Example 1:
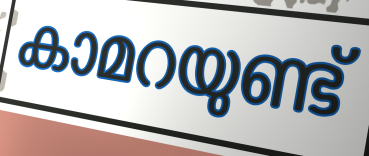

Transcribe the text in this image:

കാമറയുണ്ട്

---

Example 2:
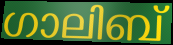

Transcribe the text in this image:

ഗാലിബ്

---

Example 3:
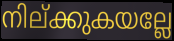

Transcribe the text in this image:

നില്ക്കുകയല്ലേ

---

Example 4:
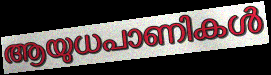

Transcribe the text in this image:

ആയുധപാണികൾ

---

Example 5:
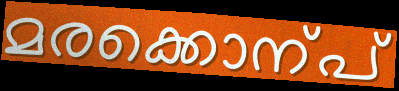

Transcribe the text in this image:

മരക്കൊന്പ്